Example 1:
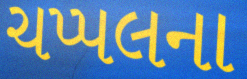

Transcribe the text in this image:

ચપ્પલના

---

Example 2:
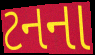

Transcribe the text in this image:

ટનના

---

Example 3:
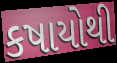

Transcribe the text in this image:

કષાયોથી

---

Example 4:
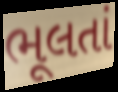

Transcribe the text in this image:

ભૂલતાં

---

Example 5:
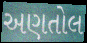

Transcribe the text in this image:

અણતોલ